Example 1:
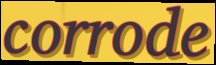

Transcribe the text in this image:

corrode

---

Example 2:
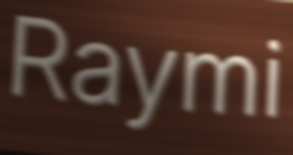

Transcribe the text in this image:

Raymi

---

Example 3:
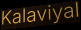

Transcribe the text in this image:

Kalaviyal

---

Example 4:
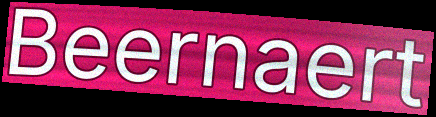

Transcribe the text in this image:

Beernaert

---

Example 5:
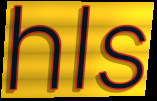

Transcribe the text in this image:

hls